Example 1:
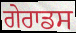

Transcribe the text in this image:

ਗੇਰਾਡਸ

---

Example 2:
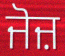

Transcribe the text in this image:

ਜੋਜ਼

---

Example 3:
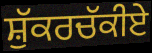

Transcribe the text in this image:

ਸ਼ੁੱਕਰਚੱਕੀਏ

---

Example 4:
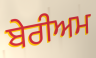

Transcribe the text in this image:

ਬੇਰੀਅਮ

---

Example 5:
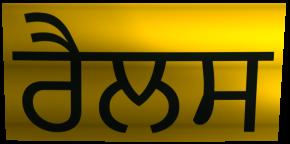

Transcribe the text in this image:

ਰੈਲਸ